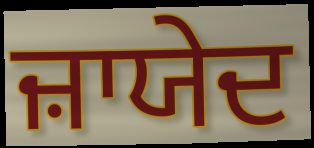
ਜ਼ਾਯੇਦ